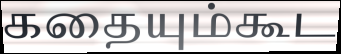
கதையும்கூட